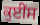
ਕੁਈਂਸ